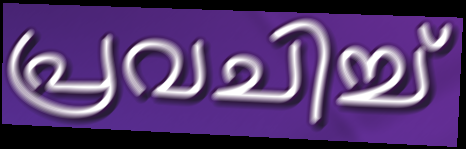
പ്രവചിച്ച്